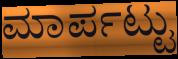
ಮಾರ್ಪಟ್ಟು